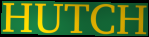
HUTCH